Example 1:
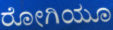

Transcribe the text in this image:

ರೋಗಿಯೂ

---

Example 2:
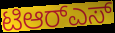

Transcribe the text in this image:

ಟಿಆರ್‌ಎಸ್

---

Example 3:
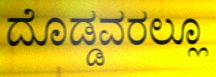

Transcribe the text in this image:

ದೊಡ್ಡವರಲ್ಲೂ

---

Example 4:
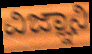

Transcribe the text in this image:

ವಿಜ್ಞಾನಿ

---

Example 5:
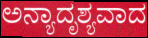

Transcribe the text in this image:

ಅನ್ಯಾದೃಶ್ಯವಾದ